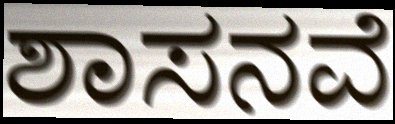
ಶಾಸನವೆ